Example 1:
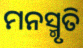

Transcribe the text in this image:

ମନସ୍ମୃତି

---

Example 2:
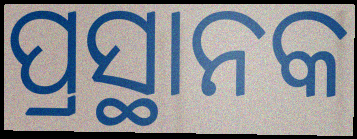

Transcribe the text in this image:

ପ୍ରସ୍ଥାନକ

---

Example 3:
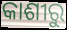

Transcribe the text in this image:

କାଶୀରୁ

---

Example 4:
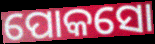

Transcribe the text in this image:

ପୋକସୋ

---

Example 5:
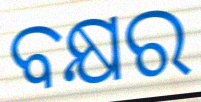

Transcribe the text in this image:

ବକ୍ଷର